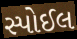
સ્પોઈલ